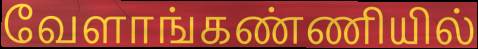
வேளாங்கண்ணியில்